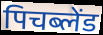
पिचब्लेंड